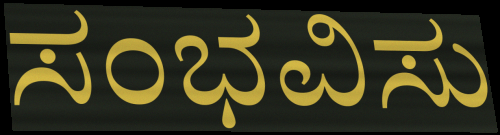
ಸಂಭವಿಸು